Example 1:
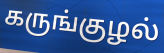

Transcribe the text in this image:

கருங்குழல்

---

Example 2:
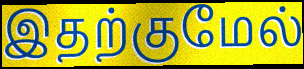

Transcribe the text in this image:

இதற்குமேல்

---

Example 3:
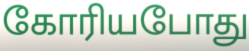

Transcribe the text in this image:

கோரியபோது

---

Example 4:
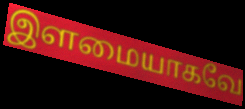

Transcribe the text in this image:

இளமையாகவே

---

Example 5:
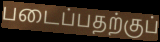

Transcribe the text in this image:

படைப்பதற்குப்